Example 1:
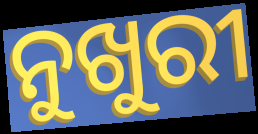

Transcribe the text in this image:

ନୁଖୁରୀ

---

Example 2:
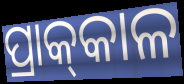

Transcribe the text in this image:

ପ୍ରାକ୍‌କାଳ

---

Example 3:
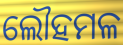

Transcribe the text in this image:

ଲୌହମଳ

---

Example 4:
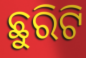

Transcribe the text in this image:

ଛୁରିଟି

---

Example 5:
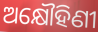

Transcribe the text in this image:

ଅକ୍ଷୌହିଣୀ